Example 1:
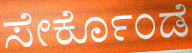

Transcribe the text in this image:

ಸೇರ್ಕೊಂಡೆ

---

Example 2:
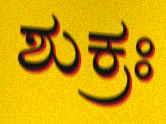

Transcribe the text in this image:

ಶುಕ್ರಃ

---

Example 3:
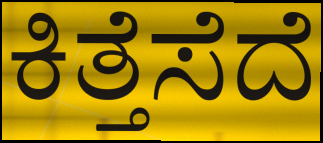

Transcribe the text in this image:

ಕಿತ್ತೆಸೆದೆ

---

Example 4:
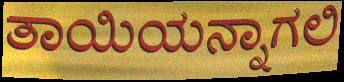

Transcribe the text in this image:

ತಾಯಿಯನ್ನಾಗಲಿ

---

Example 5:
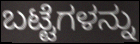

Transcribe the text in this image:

ಬಟ್ಟೆಗಳನ್ನು